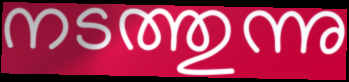
നടത്തുന്നു